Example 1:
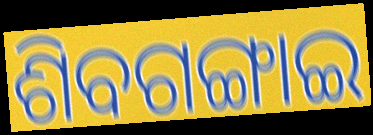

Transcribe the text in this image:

ଶିବଗଙ୍ଗାଇ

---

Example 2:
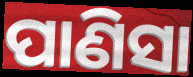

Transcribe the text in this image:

ପାଣିସା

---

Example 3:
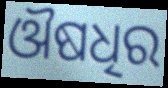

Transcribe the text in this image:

ଔଷଧିର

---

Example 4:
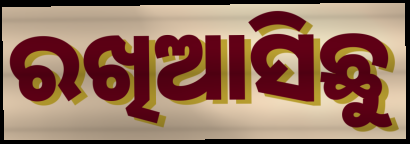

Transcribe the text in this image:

ରଖିଆସିଛୁ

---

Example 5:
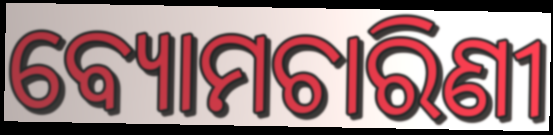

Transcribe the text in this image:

ବ୍ୟୋମଚାରିଣୀ